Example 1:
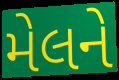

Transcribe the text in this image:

મેલને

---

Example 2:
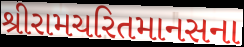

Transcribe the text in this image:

શ્રીરામચરિતમાનસના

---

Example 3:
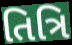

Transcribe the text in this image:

તિત્રિ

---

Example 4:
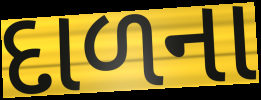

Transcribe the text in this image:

દાળના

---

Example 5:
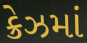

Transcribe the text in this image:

ક્રેઝમાં